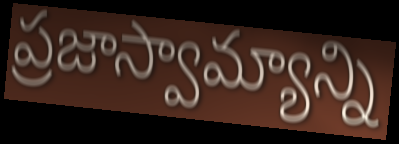
ప్రజాస్వామ్యాన్ని